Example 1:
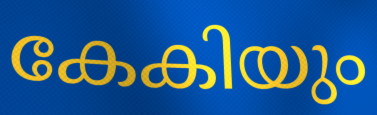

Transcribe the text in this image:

കേകിയും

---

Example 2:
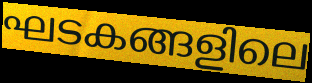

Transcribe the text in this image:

ഘടകങ്ങളിലെ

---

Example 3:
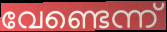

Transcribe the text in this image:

വേണ്ടെന്ന്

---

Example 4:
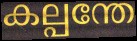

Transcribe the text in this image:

കല്പന്തേ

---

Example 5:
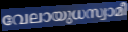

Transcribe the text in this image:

വേലായുധസ്വാമീ